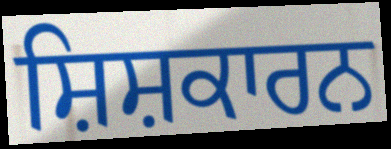
ਸ਼ਿਸ਼ਕਾਰਨ